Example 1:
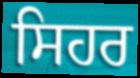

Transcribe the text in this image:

ਸਿਹਰ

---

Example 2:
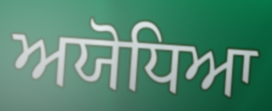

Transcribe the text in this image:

ਅਯੋਧਿਆ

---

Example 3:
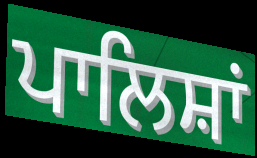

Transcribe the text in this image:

ਪਾਲਿਸ਼ਾਂ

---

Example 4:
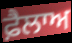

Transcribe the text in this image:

ਫ਼ੈਲਾਅ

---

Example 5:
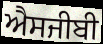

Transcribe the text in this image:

ਐਸਜੀਬੀ